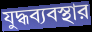
যুদ্ধব্যবস্থার